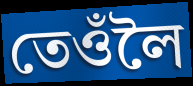
তেওঁলৈ